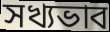
সখ্যভাব